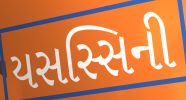
યસસ્સિની